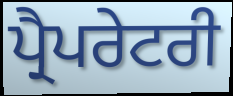
ਪ੍ਰੈਪਰੇਟਰੀ